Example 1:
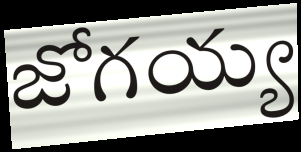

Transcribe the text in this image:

జోగయ్య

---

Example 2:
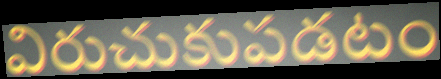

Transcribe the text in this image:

విరుచుకుపడటం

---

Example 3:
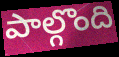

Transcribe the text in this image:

పాల్గొంది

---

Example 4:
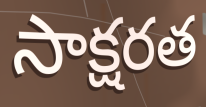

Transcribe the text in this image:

సాక్షరత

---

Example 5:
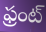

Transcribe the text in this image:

ఫ్రంట్